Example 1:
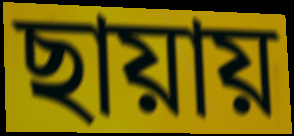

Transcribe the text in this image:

ছায়ায়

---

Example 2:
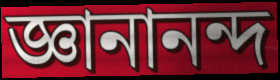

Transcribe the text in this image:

জ্ঞানানন্দ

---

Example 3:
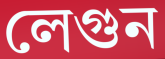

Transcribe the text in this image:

লেগুন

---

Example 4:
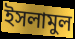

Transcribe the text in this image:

ইসলামুল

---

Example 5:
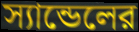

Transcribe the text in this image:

স্যান্ডেলের